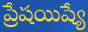
ప్రేషయిష్యే